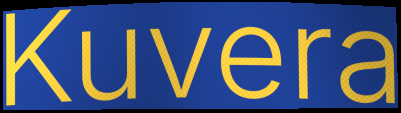
Kuvera